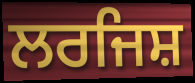
ਲਰਜਿਸ਼